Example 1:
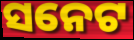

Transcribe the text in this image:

ସନେଟ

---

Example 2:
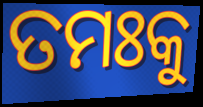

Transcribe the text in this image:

ତମଃକୁ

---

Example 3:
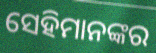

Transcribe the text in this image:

ସେହିମାନଙ୍କର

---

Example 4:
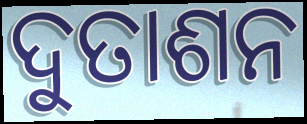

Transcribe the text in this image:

ଦୁତାଶନ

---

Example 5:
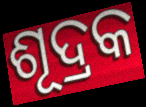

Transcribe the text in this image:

ଶୂଦ୍ରକ